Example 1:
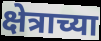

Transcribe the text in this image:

क्षेत्राच्या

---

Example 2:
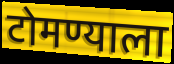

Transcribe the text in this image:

टोमण्याला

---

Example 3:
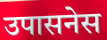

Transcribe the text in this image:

उपासनेस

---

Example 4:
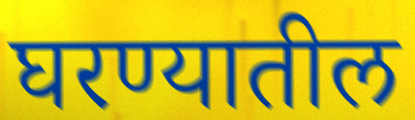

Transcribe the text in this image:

घरण्यातील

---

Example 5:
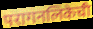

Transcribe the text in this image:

परागनलिकेची